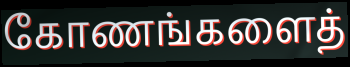
கோணங்களைத்